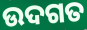
ଉଦଗତ